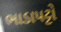
ભાડાપટ્ટો